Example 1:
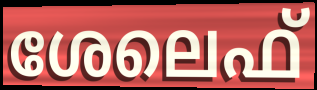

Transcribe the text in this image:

ശേലെഫ്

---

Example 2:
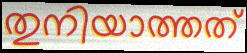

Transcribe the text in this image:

തുനിയാത്തത്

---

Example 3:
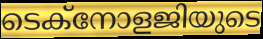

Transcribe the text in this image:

ടെക്നോളജിയുടെ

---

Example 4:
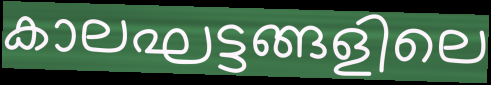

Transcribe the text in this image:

കാലഘട്ടങ്ങളിലെ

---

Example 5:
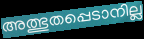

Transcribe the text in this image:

അത്ഭുതപ്പെടാനില്ല